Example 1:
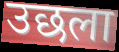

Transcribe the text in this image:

उछला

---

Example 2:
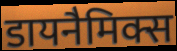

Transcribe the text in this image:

डायनैमिक्स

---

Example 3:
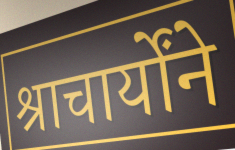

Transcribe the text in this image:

श्राचार्योंने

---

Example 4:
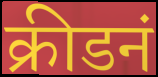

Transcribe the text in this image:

क्रीडनं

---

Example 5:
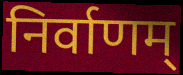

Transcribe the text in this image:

निर्वाणम्